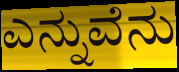
ಎನ್ನುವೆನು